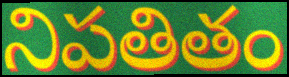
నిపతితం